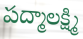
పద్మాలక్ష్మి